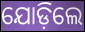
ଯୋଡ଼ିଲେ